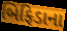
બિફિડાના